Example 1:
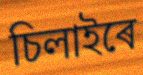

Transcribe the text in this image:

চিলাইৰে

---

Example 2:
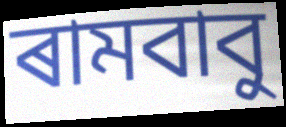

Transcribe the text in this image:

ৰামবাবু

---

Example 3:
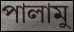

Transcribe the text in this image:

পালামু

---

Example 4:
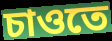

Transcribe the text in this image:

চাওতে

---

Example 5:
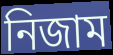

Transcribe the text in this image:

নিজাম